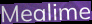
Mealime